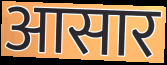
आसार